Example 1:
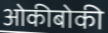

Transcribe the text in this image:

ओकीबोकी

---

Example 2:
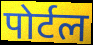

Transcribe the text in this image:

पोर्टल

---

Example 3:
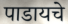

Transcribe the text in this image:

पाडायचे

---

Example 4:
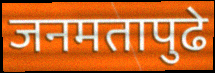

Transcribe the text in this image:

जनमतापुढे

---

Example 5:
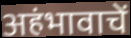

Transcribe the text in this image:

अहंभावाचें